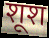
शूश